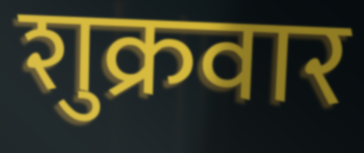
शुक्रवार